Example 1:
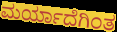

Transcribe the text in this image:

ಮರ್ಯಾದೆಗಿಂತ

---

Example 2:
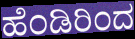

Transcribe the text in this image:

ಹೆಂಡಿರಿಂದ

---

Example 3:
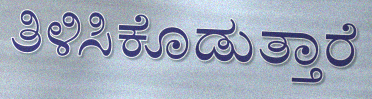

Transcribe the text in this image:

ತಿಳಿಸಿಕೊಡುತ್ತಾರೆ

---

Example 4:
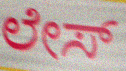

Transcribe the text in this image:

ಲೇಸ್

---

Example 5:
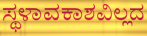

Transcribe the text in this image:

ಸ್ಥಳಾವಕಾಶವಿಲ್ಲದ